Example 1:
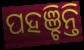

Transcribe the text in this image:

ପହଞ୍ଚିନ୍ତି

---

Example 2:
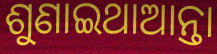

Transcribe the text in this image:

ଶୁଣାଇଥାଆନ୍ତା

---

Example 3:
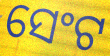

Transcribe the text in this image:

ସେଂଟ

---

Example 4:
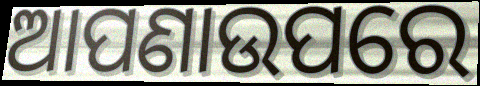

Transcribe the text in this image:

ଆପଣାଉପରେ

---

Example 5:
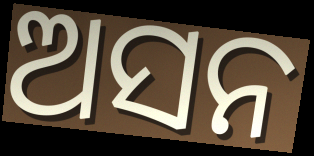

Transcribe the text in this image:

ଅସନ